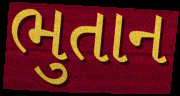
ભુતાન